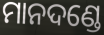
ମାନଦଣ୍ଡେ